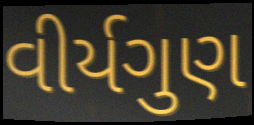
વીર્યગુણ